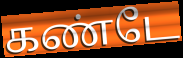
கண்டே